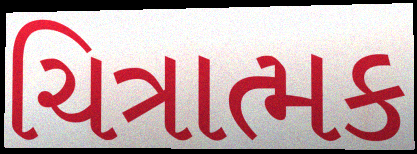
ચિત્રાત્મક